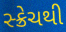
સ્ક્રેચથી